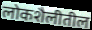
लोकशैलीतील